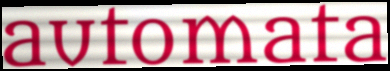
automata